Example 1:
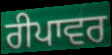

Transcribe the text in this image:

ਰੀਪਾਵਰ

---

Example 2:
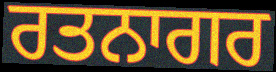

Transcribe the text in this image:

ਰਤਨਾਗਰ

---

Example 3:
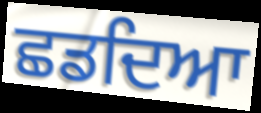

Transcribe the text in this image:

ਛਡਦਿਆ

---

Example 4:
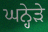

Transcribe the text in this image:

ਘਨ੍ਹੇੜੇ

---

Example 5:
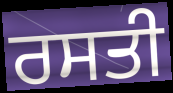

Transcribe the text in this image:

ਰਸਤੀ